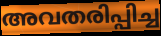
അവതരിപ്പിച്ച